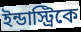
ইন্ডাস্ট্রিকে